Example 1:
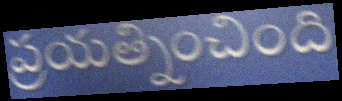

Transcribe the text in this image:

ప్రయత్నించింది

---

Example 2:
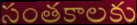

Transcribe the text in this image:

సంతకాలకు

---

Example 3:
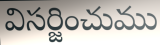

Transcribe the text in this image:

విసర్జించుము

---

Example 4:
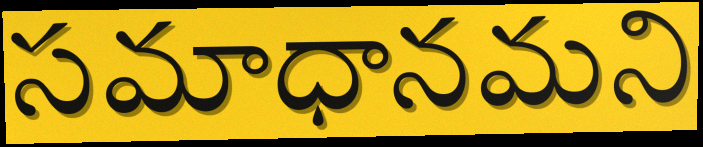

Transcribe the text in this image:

సమాధానమని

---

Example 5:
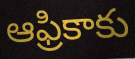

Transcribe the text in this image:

ఆఫ్రికాకు